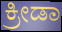
ಕ್ರೀಡಾ